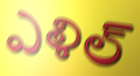
ఎళిల్